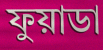
ফুয়াডা